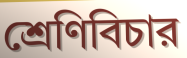
শ্রেণিবিচার